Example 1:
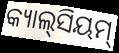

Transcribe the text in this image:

କ୍ୟାଲ୍‌ସିୟମ୍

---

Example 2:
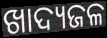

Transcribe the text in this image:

ଖାଦ୍ୟଜଳ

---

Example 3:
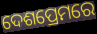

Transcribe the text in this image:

ଦେଶପ୍ରେମରେ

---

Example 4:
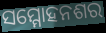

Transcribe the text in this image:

ସମ୍ମୋହନଶର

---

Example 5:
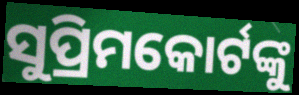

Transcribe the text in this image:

ସୁପ୍ରିମକୋର୍ଟଙ୍କୁ